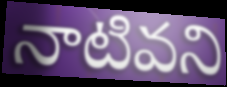
నాటివని